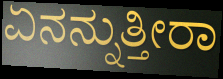
ಏನನ್ನುತ್ತೀರಾ